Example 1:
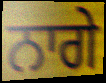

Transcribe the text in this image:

ਨਾਗੇ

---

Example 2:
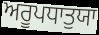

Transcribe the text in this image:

ਅਰੂਪਧਾਤੁਯਾ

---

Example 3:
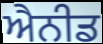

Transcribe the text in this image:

ਐਨੀਡ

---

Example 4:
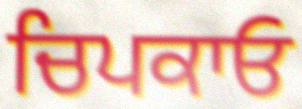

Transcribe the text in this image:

ਚਿਪਕਾਓ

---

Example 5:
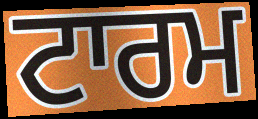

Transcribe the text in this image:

ਟਾਰਮ